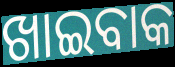
ଖାଇବାକ